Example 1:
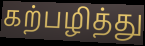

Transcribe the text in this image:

கற்பழித்து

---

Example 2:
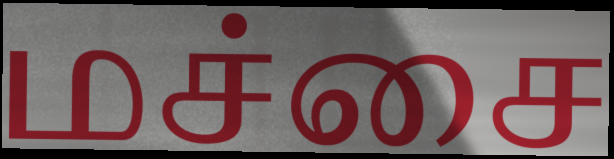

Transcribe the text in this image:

மச்சை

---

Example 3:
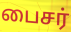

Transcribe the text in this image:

பைசர்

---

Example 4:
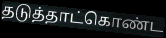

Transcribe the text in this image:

தடுத்தாட்கொண்ட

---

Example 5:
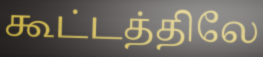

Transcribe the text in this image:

கூட்டத்திலே